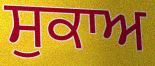
ਸੁਕਾਅ